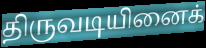
திருவடியினைக்